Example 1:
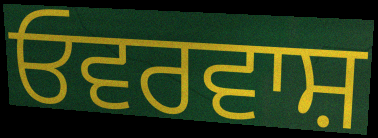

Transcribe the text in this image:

ਓਵਰਵਾਸ਼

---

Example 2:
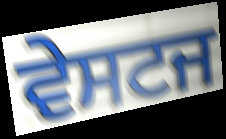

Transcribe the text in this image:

ਵੇਸਟਜ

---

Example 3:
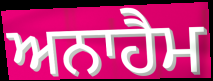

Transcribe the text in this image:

ਅਨਾਹੈਮ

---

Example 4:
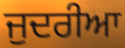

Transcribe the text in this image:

ਜੁਦਰੀਆ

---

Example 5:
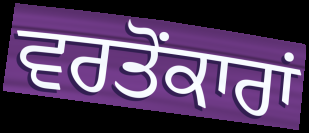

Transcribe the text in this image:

ਵਰਤੋਂਕਾਰਾਂ